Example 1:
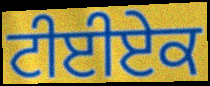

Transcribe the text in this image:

ਟੀਈਏਕ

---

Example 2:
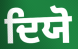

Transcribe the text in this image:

ਦਿਯੋ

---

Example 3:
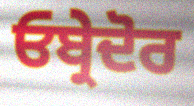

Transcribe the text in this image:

ਓਬ੍ਰੇਦੋਰ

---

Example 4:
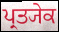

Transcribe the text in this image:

ਪ੍ਰਤ੍ਯੇਕ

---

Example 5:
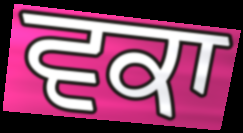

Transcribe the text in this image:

ਵਕਾ